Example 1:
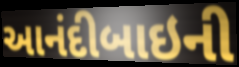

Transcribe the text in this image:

આનંદીબાઇની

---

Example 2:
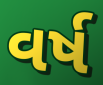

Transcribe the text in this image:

વર્ષ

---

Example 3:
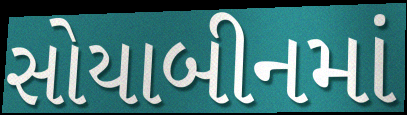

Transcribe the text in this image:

સોયાબીનમાં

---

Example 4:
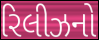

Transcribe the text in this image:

રિલીઝનો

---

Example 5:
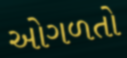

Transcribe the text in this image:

ઓગળતો